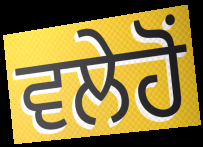
ਵਲੇਹੋਂ